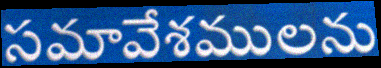
సమావేశములను